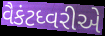
વૈકંટધ્વરીએ